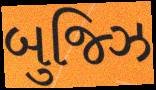
બુજ્ઝિ